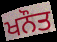
ਖਨੌਤ